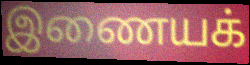
இணையக்